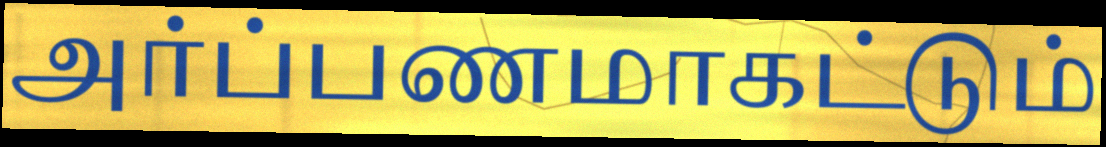
அர்ப்பணமாகட்டும்